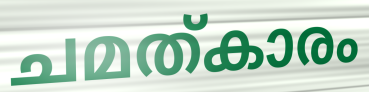
ചമത്കാരം